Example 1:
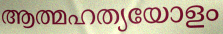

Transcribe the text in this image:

ആത്മഹത്യയോളം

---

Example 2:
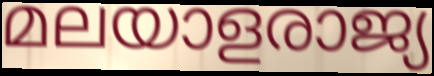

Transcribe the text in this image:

മലയാളരാജ്യ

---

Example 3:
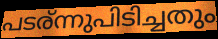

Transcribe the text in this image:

പടര്ന്നുപിടിച്ചതും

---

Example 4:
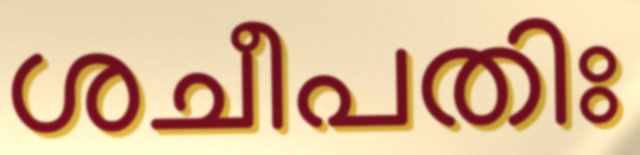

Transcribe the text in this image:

ശചീപതിഃ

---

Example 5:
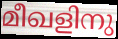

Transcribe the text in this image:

മീഖളിനു